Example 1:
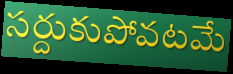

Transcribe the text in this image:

సర్దుకుపోవటమే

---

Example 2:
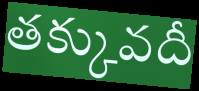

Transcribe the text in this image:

తక్కువదీ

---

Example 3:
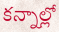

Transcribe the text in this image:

కన్నాల్లో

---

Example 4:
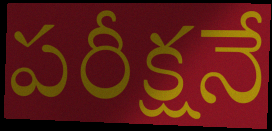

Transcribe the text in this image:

పరీక్షనే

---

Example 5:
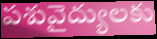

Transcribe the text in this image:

పశువైద్యులకు